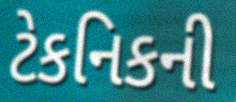
ટેકનિકની